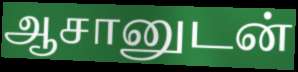
ஆசானுடன்